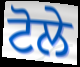
ਟੋਲੇ